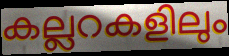
കല്ലറകളിലും